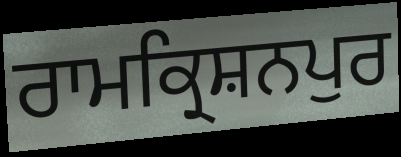
ਰਾਮਕ੍ਰਿਸ਼ਨਪੁਰ